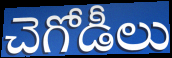
చెగోడీలు